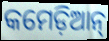
କମେଡ଼ିଆନ୍